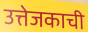
उत्तेजकाची